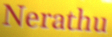
Nerathu